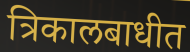
त्रिकालबाधीत